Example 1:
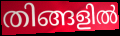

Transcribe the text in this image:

തിങ്ങളിൽ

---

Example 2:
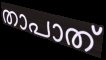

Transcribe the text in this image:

താപാത്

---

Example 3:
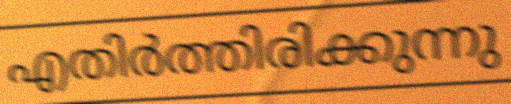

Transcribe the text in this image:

എതിർത്തിരിക്കുന്നു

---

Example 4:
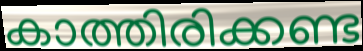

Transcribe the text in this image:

കാത്തിരിക്കണ്ട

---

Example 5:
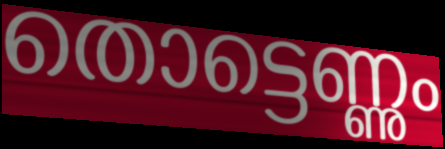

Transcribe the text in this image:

തൊട്ടെണ്ണും